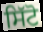
ਸਿੱਟੋ